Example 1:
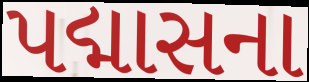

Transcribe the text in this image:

પદ્માસના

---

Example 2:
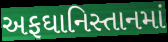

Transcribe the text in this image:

અફઘાનિસ્તાનમાં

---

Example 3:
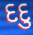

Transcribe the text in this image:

દદુ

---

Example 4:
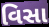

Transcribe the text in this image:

વિસા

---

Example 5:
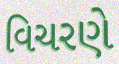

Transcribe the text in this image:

વિચરણે